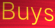
Buys